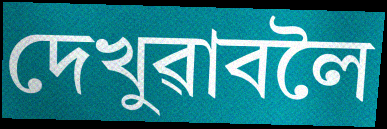
দেখুৱাবলৈ